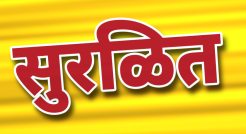
सुरळित